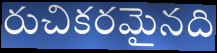
రుచికరమైనది